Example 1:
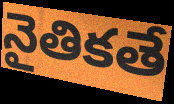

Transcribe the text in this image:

నైతికతే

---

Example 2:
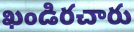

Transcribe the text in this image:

ఖండిరచారు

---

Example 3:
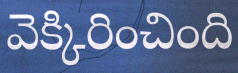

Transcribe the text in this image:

వెక్కిరించింది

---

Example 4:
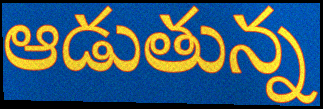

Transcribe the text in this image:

ఆడుతున్న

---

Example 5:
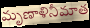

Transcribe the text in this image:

మృణాళినీమాత